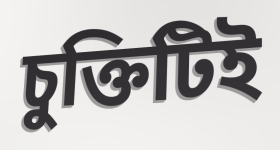
চুক্তিটিই